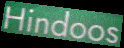
Hindoos